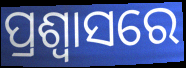
ପ୍ରଶ୍ଵାସରେ